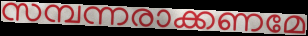
സമ്പന്നരാക്കണമേ